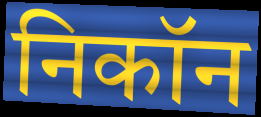
निकॉन